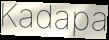
Kadapa